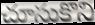
చూసుకొని